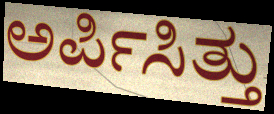
ಅರ್ಪಿಸಿತ್ತು